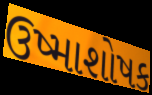
ઉષ્માશોષક